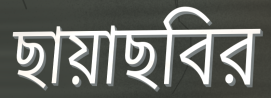
ছায়াছবির